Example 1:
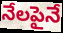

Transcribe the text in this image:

నేలపైనే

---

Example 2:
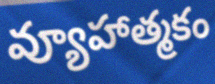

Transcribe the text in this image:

వ్యూహాత్మకం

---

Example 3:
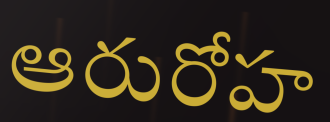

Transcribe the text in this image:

ఆరురోహ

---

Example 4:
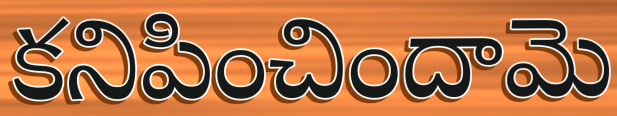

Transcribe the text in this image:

కనిపించిందామె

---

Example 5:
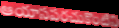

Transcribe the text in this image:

ఆయాసపరచుకొంటిని